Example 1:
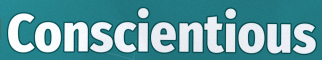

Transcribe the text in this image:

Conscientious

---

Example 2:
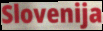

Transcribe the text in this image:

Slovenija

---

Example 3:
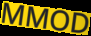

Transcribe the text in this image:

MMOD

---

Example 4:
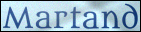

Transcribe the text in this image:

Martand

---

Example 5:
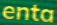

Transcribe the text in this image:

enta